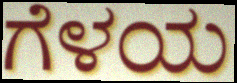
ಗೆಳಯ